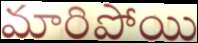
మారిపోయి